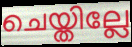
ചെയ്തില്ലേ